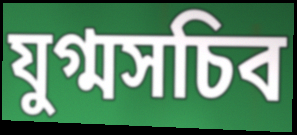
যুগ্মসচিব